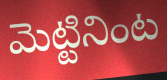
మెట్టినింట